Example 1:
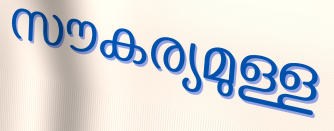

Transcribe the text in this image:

സൗകര്യമുള്ള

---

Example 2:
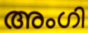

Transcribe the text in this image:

അംഗി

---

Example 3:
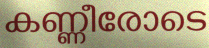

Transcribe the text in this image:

കണ്ണീരോടെ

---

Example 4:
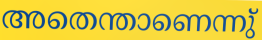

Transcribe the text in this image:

അതെന്താണെന്നു്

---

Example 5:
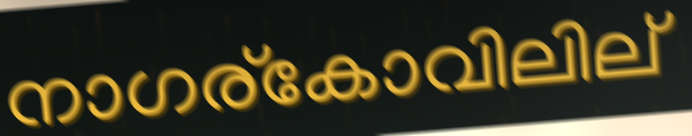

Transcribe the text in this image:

നാഗര്കോവിലില്